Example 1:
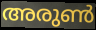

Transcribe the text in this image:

അരുൺ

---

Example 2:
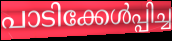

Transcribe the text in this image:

പാടിക്കേൾപ്പിച്ച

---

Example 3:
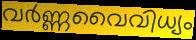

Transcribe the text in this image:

വർണ്ണവൈവിധ്യം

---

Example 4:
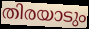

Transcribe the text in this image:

തിരയാടും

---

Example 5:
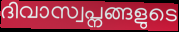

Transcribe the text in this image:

ദിവാസ്വപ്നങ്ങളുടെ